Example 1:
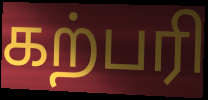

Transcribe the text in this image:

கற்பரி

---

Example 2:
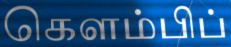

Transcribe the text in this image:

கௌம்பிப்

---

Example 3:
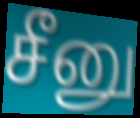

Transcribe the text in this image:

சீனு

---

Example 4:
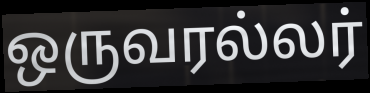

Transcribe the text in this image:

ஒருவரல்லர்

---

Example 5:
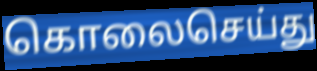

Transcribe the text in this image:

கொலைசெய்து